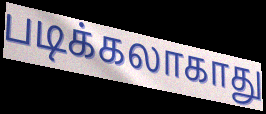
படிக்கலாகாது